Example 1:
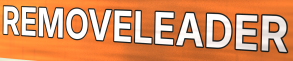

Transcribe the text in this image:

REMOVELEADER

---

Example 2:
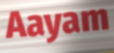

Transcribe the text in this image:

Aayam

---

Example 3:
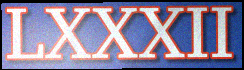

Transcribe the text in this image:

LXXXII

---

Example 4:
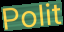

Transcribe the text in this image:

Polit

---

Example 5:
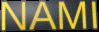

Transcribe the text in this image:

NAMI